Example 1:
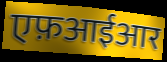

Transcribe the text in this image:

एफ़आईआर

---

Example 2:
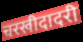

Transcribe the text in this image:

चरखीदादरी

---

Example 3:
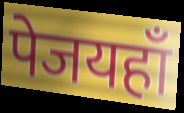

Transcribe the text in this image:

पेजयहाँ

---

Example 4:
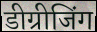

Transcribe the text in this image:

डीग्रीजिंग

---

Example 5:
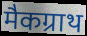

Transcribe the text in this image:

मैकग्राथ